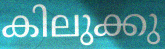
കിലുക്കു